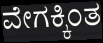
ವೇಗಕ್ಕಿಂತ